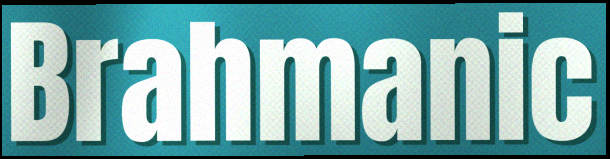
Brahmanic